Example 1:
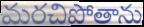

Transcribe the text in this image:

మరచిపోతాను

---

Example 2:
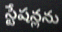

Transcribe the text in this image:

స్టేషన్లను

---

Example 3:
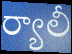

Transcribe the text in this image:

ర్యాలీ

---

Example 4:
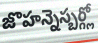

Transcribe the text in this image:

జొహన్నెస్బర్గ్లో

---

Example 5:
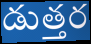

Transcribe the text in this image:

డుత్తర